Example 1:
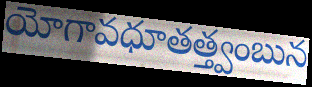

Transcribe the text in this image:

యోగావధూతత్త్వంబున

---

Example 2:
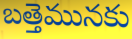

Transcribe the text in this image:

బత్తెమునకు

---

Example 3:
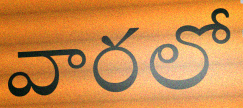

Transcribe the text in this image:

వారలో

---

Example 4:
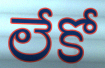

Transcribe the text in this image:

లేకో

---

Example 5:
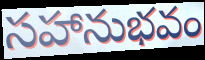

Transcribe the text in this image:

సహానుభవం